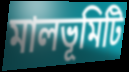
মালভূমিটি